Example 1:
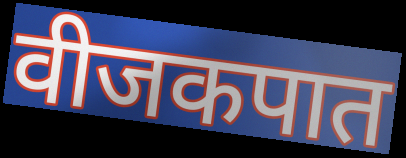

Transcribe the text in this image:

वीजकपात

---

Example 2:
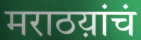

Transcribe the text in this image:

मराठय़ांचं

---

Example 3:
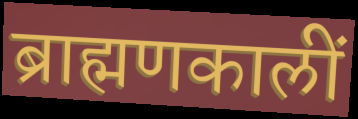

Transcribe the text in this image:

ब्राह्मणकालीं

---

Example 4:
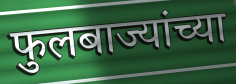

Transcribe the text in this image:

फुलबाज्यांच्या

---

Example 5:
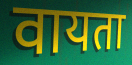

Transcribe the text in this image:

वायता